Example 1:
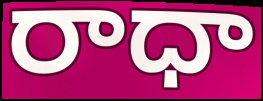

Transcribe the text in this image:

రాధా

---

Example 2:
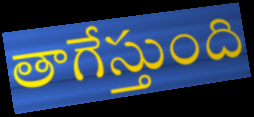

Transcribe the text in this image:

తాగేస్తుంది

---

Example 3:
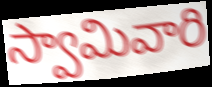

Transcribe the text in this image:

స్వామివారి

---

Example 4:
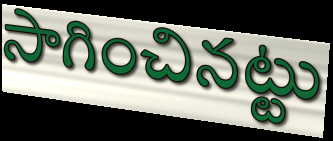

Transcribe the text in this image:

సాగించినట్టు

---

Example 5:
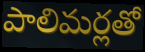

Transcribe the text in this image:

పాలిమర్లతో